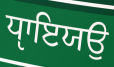
ਧੵਾਇਯਉ